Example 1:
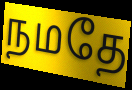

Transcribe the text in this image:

நமதே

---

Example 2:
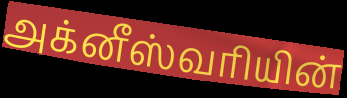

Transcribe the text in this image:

அக்னீஸ்வரியின்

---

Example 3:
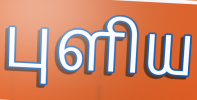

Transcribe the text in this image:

புளிய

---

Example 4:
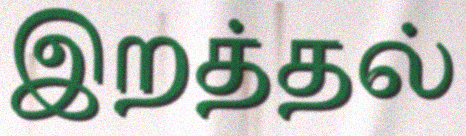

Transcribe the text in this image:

இறத்தல்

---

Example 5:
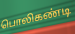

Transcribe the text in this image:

பொலிகண்டி